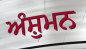
ਅੰਸ਼ੁਮਨ